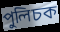
পুলিচক